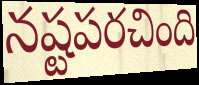
నష్టపరచింది